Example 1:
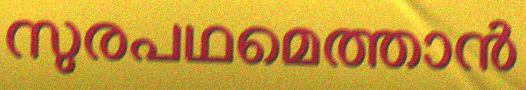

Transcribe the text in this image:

സുരപഥമെത്താൻ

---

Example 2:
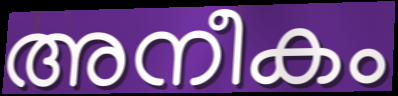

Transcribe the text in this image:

അനീകം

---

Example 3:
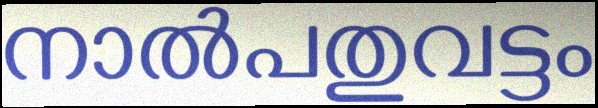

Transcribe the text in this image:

നാൽപതുവട്ടം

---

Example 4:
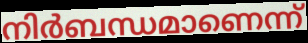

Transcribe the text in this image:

നിർബന്ധമാണെന്ന്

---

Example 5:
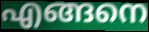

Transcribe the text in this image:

എങ്ങനെ